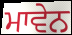
ਮਾਵੇਨ